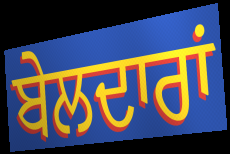
ਬੇਲਦਾਰਾਂ